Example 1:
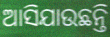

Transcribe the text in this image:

ଆସିଯାଉଛନ୍ତି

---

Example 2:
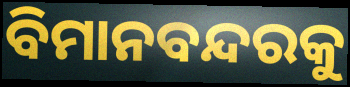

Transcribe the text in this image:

ବିମାନବନ୍ଦରକୁ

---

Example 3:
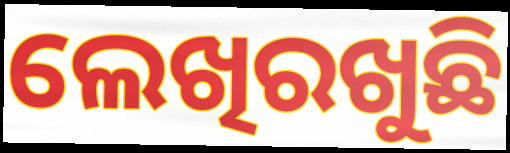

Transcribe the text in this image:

ଲେଖିରଖୁଛି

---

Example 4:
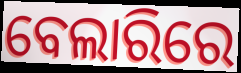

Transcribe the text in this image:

ବେଲାରିରେ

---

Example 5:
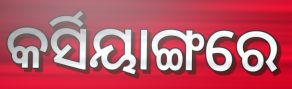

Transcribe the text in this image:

କର୍ସିୟାଙ୍ଗରେ